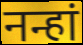
नन्हां